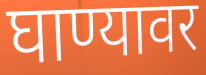
घाण्यावर